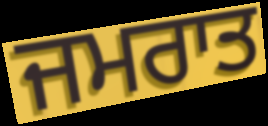
ਜਮਰਾਤ